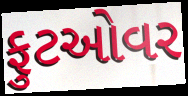
ફુટઓવર